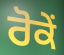
ਰੋਕੇਂ